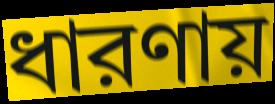
ধারণায়